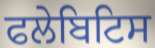
ਫਲੇਬਿਟਿਸ